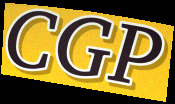
CGP